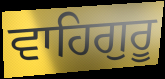
ਵਾਹਿਗੁਰੂ